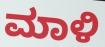
ಮಾಳಿ